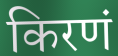
किरणं